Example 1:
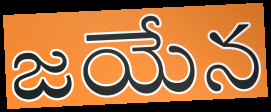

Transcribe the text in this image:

జయేన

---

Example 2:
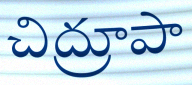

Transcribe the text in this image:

చిద్రూపా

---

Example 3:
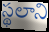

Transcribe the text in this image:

స్థలాని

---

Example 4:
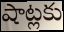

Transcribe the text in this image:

షాట్లకు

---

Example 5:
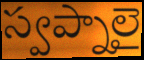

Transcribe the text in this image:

స్వప్నాలై